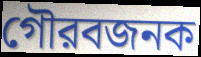
গৌরবজনক